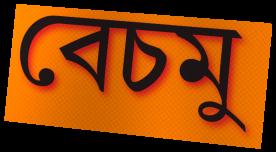
বেচমু